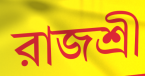
রাজশ্রী